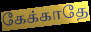
கேக்காதே